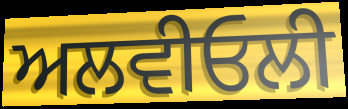
ਅਲਵੀਓਲੀ